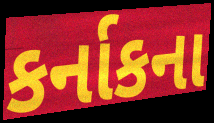
કર્નાકના